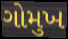
ગોમુખ